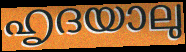
ഹൃദയാലു